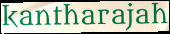
kantharajah